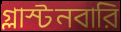
গ্লাস্টনবারি